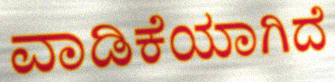
ವಾಡಿಕೆಯಾಗಿದೆ